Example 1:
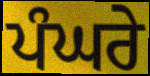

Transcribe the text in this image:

ਪੰਘਰੇ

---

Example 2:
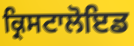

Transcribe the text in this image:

ਕ੍ਰਿਸਟਾਲੋਇਡ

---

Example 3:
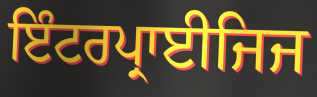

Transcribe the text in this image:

ਇੰਟਰਪ੍ਰਾਈਜਿਜ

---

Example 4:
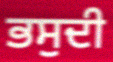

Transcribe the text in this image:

ਭਸੁਦੀ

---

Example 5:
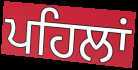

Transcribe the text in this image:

ਪਹਿਲਾਂ